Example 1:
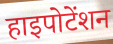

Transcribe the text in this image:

हाइपोटेंशन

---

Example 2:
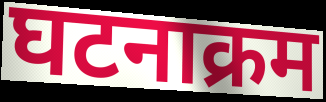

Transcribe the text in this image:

घटनाक्रम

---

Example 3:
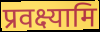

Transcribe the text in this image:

प्रवक्ष्यामि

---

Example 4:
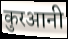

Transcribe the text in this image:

कुरआनी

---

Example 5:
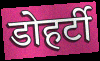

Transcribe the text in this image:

डोहर्टी